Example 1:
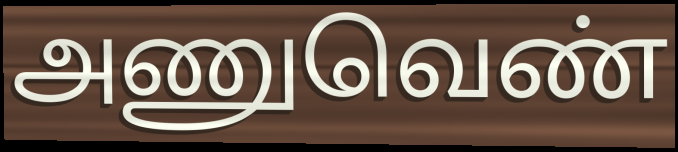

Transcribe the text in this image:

அணுவெண்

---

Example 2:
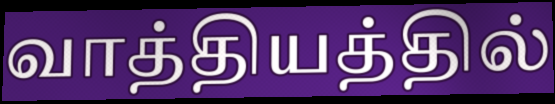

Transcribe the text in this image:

வாத்தியத்தில்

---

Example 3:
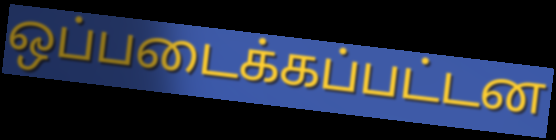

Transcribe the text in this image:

ஒப்படைக்கப்பட்டன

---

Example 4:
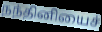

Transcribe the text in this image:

நந்தினியைச்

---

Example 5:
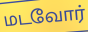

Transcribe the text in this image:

மடவோர்